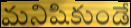
మనిషికుండే